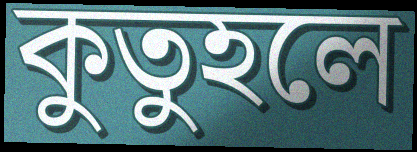
কুতুহলে